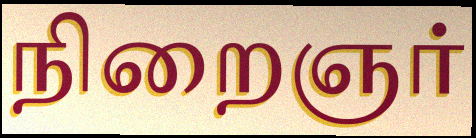
நிறைஞர்